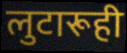
लुटारूही